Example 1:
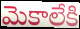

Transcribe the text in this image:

మెకాలేకి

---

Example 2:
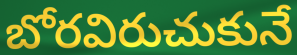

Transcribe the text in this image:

బోరవిరుచుకునే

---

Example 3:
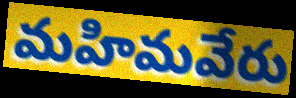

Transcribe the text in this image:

మహిమవేరు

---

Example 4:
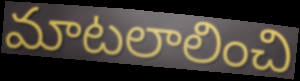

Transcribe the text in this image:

మాటలాలించి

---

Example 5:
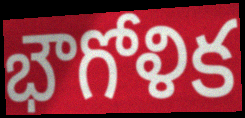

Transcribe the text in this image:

భౌగోళిక